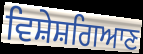
ਵਿਸ਼ੇਸ਼ਗਿਆਣ